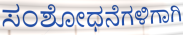
ಸಂಶೋಧನೆಗಳಿಗಾಗಿ